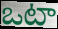
ఒటా